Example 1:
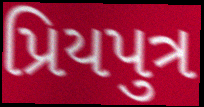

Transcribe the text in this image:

પ્રિયપુત્ર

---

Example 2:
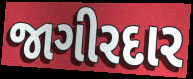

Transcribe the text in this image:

જાગીરદાર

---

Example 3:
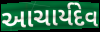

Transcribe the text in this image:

આચાર્યદેવ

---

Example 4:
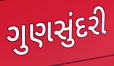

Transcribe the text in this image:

ગુણસુંદરી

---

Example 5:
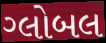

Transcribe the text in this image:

ગ્લોબલ